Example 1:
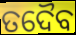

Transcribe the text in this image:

ତଦୈବ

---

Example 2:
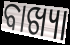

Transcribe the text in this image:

ବାଖ୍ୟା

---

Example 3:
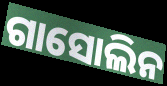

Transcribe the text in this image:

ଗାସୋଲିନ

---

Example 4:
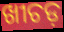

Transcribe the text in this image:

ଖୀଚଡ଼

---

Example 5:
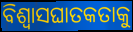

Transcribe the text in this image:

ବିଶ୍ୱାସଘାତକତାକୁ